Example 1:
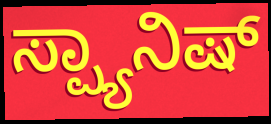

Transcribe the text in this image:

ಸ್ಪ್ಯಾನಿಷ್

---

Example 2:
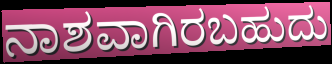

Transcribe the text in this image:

ನಾಶವಾಗಿರಬಹುದು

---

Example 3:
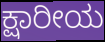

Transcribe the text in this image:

ಕ್ಷಾರೀಯ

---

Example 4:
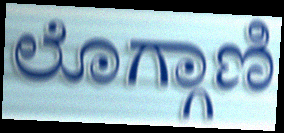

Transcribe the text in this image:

ಲೊಗ್ಗಾಣಿ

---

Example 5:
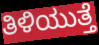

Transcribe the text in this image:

ತಿಳಿಯುತ್ತೆ